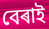
বেৰাই